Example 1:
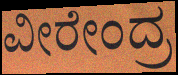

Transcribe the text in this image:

ವೀರೇಂದ್ರ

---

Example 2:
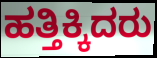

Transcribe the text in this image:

ಹತ್ತಿಕ್ಕಿದರು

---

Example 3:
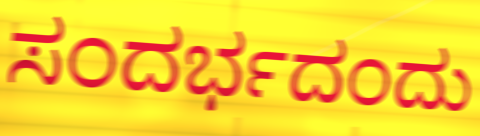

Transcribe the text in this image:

ಸಂದರ್ಭದಂದು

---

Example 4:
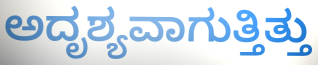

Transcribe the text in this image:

ಅದೃಶ್ಯವಾಗುತ್ತಿತ್ತು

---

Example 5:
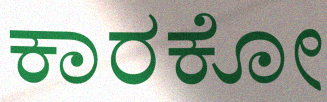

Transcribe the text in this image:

ಕಾರಕೋ